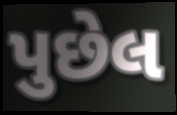
પુછેલ